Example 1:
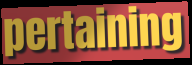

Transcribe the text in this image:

pertaining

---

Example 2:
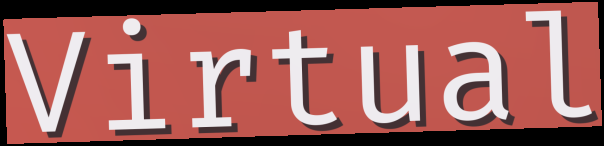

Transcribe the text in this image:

Virtual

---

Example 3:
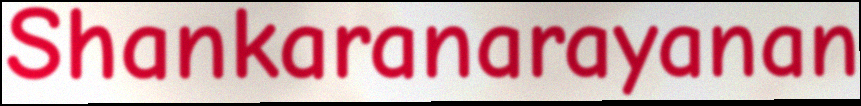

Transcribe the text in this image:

Shankaranarayanan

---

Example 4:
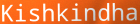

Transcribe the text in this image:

Kishkindha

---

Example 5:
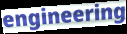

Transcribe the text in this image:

engineering